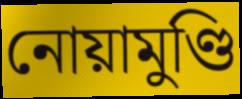
নোয়ামুণ্ডি